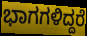
ಭಾಗಗಳಿದ್ದರೆ